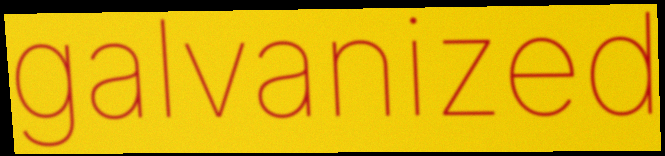
galvanized